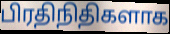
பிரதிநிதிகளாக